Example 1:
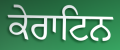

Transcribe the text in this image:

ਕੇਰਾਟਿਨ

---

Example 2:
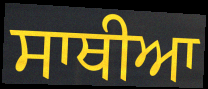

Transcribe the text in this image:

ਸਾਥੀਆ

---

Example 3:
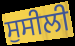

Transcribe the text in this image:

ਸੁਸੀਲੀ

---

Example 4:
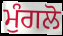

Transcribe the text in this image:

ਮੁੰਗਲੋ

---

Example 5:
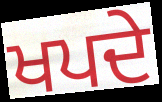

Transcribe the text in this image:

ਖਪਦੇ